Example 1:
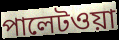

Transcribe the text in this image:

পালেটওয়া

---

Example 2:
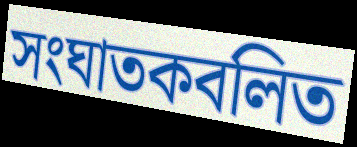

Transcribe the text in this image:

সংঘাতকবলিত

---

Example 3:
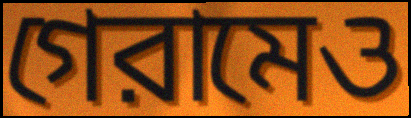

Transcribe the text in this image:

গেরামেও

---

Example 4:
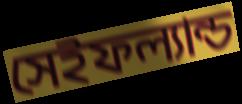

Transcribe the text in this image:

সেইফল্যান্ড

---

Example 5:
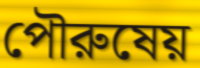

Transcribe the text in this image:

পৌরুষেয়